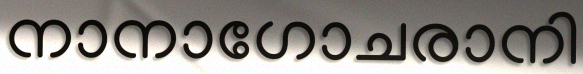
നാനാഗോചരാനി